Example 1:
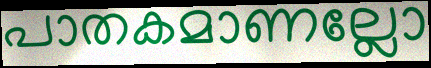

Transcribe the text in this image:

പാതകമാണല്ലോ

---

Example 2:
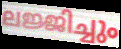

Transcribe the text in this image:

ലജ്ജിച്ചും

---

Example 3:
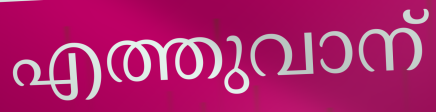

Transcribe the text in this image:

എത്തുവാന്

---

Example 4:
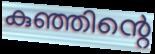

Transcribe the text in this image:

കുഞ്ഞിന്റെ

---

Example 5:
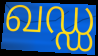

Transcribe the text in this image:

ഖഡ്ഡ